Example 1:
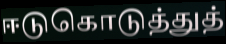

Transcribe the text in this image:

ஈடுகொடுத்துத்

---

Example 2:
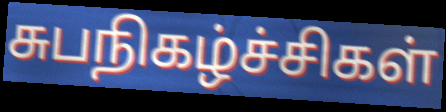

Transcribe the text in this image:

சுபநிகழ்ச்சிகள்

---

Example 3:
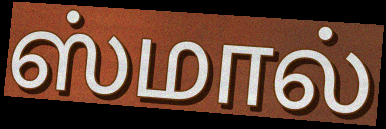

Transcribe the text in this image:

ஸ்மால்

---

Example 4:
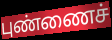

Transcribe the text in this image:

புண்ணைச்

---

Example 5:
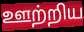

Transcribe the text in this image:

ஊற்றிய